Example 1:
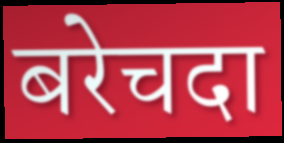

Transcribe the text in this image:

बरेचदा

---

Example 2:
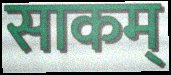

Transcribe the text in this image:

साकम्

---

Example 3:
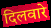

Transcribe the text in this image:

दिलवारे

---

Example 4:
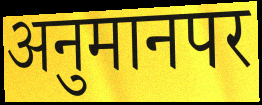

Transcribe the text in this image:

अनुमानपर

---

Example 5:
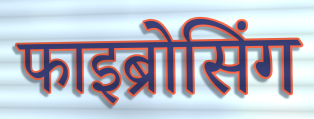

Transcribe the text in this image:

फाइब्रोसिंग